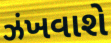
ઝંખવાશે